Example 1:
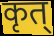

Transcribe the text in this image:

कृत्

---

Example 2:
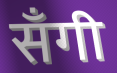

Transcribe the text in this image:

सँगी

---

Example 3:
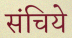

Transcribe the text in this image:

संचिये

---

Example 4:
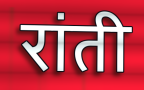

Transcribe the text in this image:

रांती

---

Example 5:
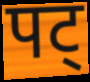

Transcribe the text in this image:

पट्